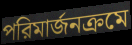
পরিমার্জনক্রমে